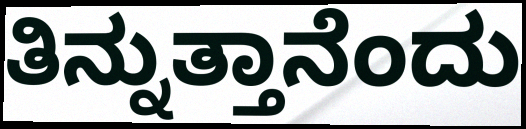
ತಿನ್ನುತ್ತಾನೆಂದು